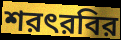
শরৎরবির